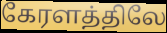
கேரளத்திலே